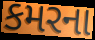
કમરના